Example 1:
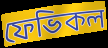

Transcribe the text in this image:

ফেভিকল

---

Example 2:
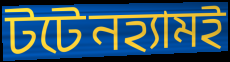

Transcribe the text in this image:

টটেনহ্যামই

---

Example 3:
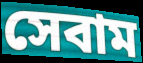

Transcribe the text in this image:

সেবাম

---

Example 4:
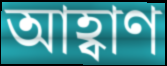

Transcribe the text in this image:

আহ্বাণ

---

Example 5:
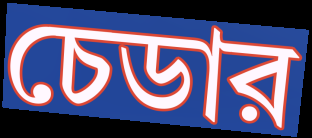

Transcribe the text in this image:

চেডার